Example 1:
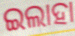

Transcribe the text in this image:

ଇଲାହା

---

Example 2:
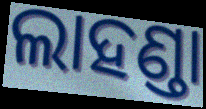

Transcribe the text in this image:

ଲାହଣ୍ଡା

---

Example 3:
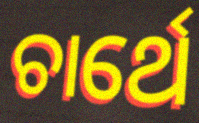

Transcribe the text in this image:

ଚାର୍ଥେ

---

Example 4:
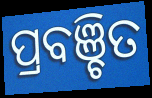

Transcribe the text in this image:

ପ୍ରବଞ୍ଚିତ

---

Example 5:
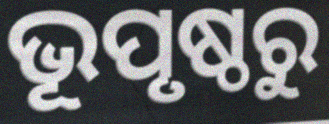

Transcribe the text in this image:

ଭୂପୃଷ୍ଠରୁ